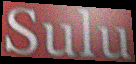
Sulu